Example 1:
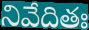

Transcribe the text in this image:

నివేదితః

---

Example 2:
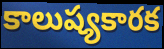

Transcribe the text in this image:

కాలుష్యకారక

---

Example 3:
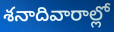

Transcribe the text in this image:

శనాదివారాల్లో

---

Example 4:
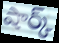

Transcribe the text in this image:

షార్క్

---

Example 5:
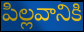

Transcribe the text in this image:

పిల్లవానికి